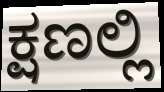
ಕ್ಷಣಲ್ಲಿ